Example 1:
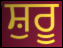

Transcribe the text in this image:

ਸ਼ੁਰੂ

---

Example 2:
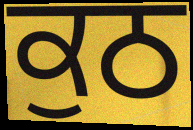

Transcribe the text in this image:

ਕੁਠ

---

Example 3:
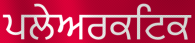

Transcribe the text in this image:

ਪਲੇਅਰਕਟਿਕ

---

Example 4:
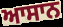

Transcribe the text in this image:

ਆਸਾਨ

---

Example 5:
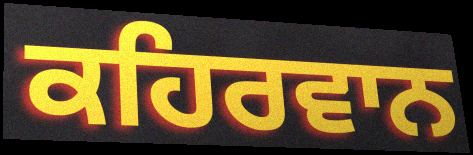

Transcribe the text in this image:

ਕਹਿਰਵਾਨ